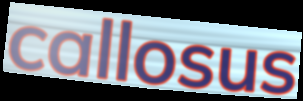
callosus